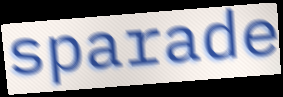
sparade